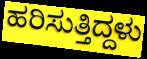
ಹರಿಸುತ್ತಿದ್ದಳು